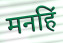
मनहिं